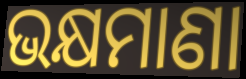
ଭକ୍ଷମାଣା